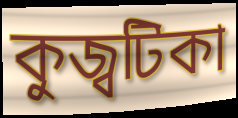
কুজ্বটিকা